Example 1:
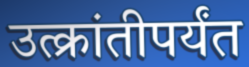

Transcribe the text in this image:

उत्क्रांतीपर्यंत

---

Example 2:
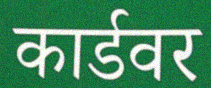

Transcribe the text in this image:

कार्डवर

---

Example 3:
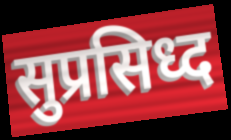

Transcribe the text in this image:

सुप्रसिध्द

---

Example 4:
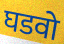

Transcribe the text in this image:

घडवो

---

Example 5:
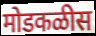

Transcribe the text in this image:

मोडकळीस